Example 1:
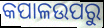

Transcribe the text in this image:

କପାଳଉପରୁ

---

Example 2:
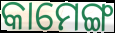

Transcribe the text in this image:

କାମେଙ୍ଗ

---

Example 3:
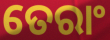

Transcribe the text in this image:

ତେରାଂ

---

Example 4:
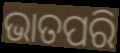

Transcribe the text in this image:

ଭାତପରି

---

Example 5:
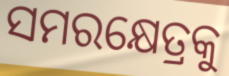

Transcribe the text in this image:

ସମରକ୍ଷେତ୍ରକୁ